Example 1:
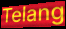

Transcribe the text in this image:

Telang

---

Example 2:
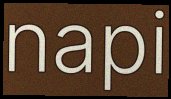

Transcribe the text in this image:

napi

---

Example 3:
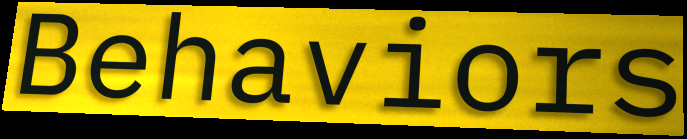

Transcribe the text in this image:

Behaviors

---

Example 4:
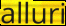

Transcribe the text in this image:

alluri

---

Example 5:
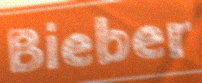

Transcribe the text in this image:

Bieber